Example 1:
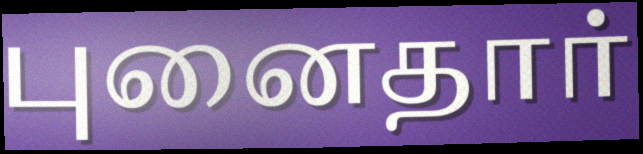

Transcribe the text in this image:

புனைதார்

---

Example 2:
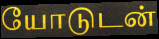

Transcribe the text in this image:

யோடுடன்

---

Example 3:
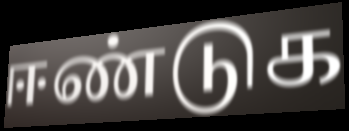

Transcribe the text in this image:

ஈண்டுக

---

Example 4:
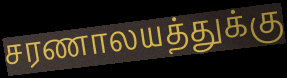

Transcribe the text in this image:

சரணாலயத்துக்கு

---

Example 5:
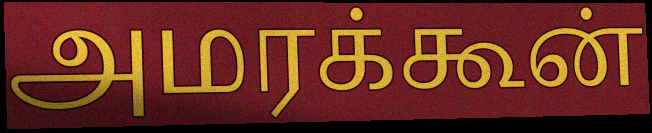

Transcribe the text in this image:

அமரக்கூன்